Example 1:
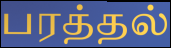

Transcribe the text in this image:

பரத்தல்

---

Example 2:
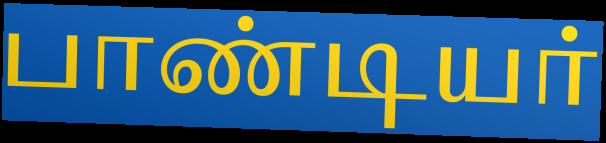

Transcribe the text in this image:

பாண்டியர்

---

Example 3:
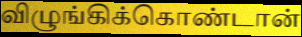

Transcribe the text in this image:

விழுங்கிக்கொண்டான்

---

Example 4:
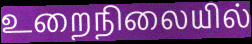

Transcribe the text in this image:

உறைநிலையில்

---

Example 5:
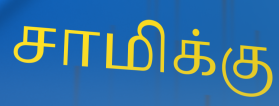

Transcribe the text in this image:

சாமிக்கு